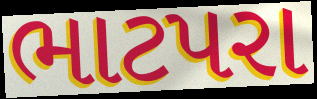
ભાટપરા